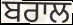
ਬਰਾਲ